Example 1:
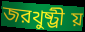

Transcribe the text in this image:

জরথুষ্ট্রীয়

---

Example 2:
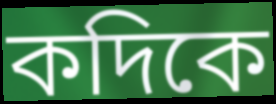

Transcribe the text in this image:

কদিকে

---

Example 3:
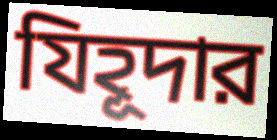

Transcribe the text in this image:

যিহূদার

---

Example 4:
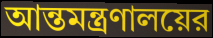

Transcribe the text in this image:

আন্তমন্ত্রণালয়ের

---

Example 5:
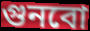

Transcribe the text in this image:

গুনবো